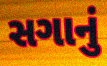
સગાનું